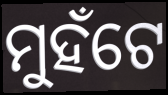
ମୁହଁଟେ